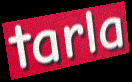
tarla